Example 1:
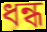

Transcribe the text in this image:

ধন্ধ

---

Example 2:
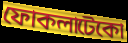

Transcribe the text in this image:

ফোকলাটেকো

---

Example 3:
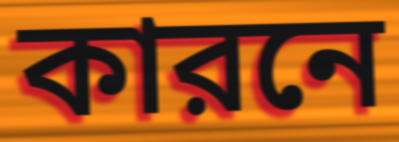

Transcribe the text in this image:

কারনে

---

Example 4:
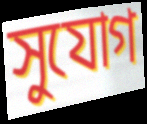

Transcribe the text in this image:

সুযোগ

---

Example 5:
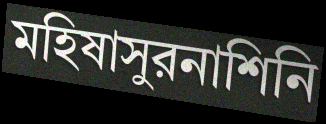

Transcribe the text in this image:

মহিষাসুরনাশিনি